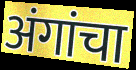
अंगांचा